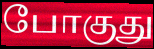
போகுது